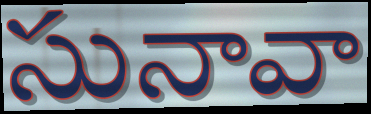
సునావా